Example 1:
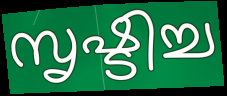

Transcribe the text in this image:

സൃഷ്ടിച്ച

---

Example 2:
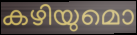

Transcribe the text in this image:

കഴിയുമൊ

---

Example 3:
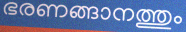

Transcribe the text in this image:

ഭരണങ്ങാനത്തും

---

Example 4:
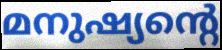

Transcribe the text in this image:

മനുഷ്യന്റെ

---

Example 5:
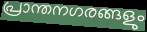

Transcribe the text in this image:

പ്രാന്തനഗരങ്ങളും